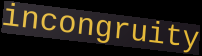
incongruity